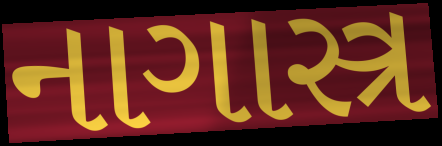
નાગાસ્ત્ર